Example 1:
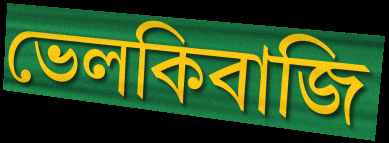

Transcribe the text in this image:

ভেলকিবাজি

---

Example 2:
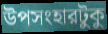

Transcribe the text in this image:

উপসংহারটুকু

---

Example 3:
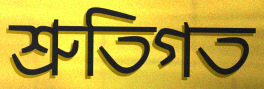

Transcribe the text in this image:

শ্রুতিগত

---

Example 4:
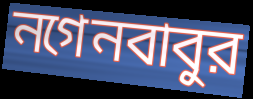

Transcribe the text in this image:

নগেনবাবুর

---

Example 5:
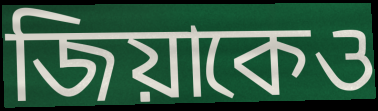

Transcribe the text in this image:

জিয়াকেও